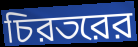
চিরতরের